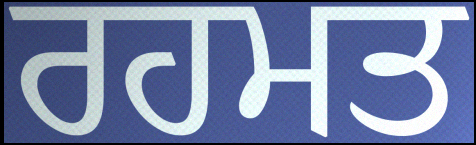
ਰਹਮਤ